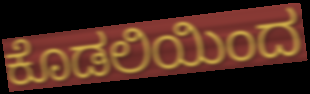
ಕೊಡಲಿಯಿಂದ